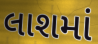
લાશમાં